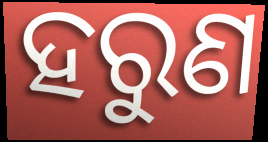
ହରୁଣ